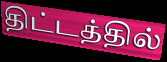
திட்டத்தில்